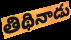
తిథినాడు